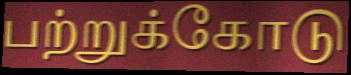
பற்றுக்கோடு